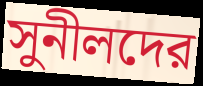
সুনীলদের